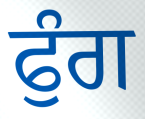
ਫੁੰਗ